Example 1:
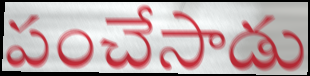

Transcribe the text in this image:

పంచేసాడు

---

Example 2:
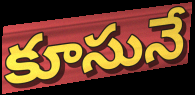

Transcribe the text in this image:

కూసునే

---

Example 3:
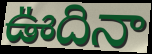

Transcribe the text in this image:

ఊదినా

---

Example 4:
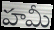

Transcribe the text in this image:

హమీ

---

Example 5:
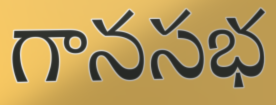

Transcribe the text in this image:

గానసభ